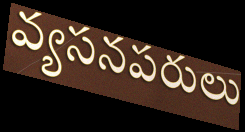
వ్యసనపరులు